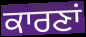
ਕਾਰਣਾਂ